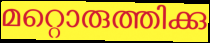
മറ്റൊരുത്തിക്കു